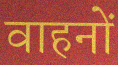
वाहनों